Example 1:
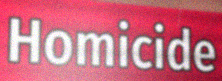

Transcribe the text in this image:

Homicide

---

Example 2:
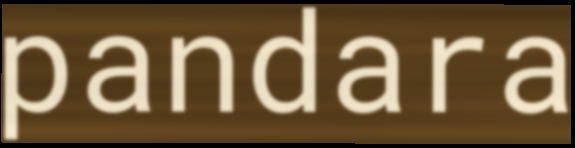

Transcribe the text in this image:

pandara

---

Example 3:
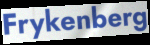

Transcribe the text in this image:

Frykenberg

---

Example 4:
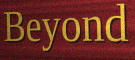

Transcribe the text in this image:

Beyond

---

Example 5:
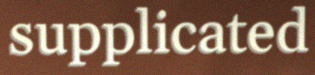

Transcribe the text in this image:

supplicated